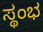
ಸ್ಥಂಭ